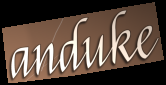
anduke